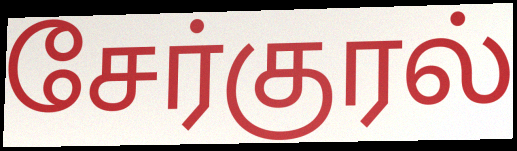
சேர்குரல்